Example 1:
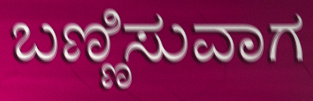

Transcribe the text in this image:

ಬಣ್ಣಿಸುವಾಗ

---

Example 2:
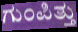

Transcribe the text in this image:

ಗುಂಪಿತ್ತು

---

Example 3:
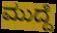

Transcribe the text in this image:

ಮುದ್ದೆ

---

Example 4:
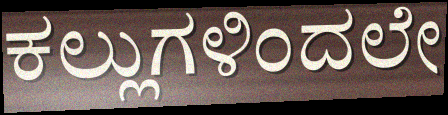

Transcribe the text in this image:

ಕಲ್ಲುಗಳಿಂದಲೇ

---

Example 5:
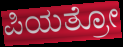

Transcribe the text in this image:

ಪಿಯತ್ರೋ